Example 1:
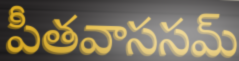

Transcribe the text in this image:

పీతవాససమ్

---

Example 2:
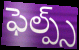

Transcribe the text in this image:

ఫెల్ప్స్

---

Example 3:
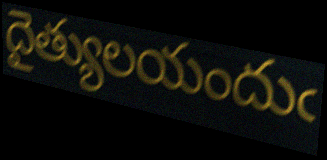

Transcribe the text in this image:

దైత్యులయందుఁ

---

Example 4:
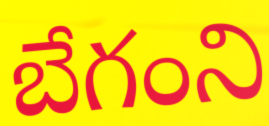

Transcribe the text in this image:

బేగంని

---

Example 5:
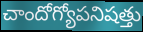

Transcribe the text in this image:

చాందోగ్యోపనిషత్తు